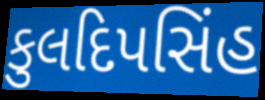
કુલદિપસિંહ